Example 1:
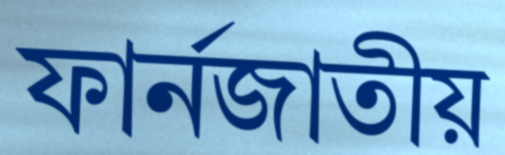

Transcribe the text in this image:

ফার্নজাতীয়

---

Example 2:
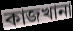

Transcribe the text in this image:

কাজখানা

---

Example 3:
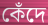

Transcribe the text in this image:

কেঁদে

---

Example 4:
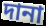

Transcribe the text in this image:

দানা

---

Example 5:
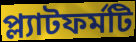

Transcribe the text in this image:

প্ল্যাটফর্মটি